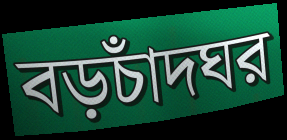
বড়চাঁদঘর